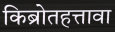
किब्रोतहत्तावा